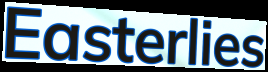
Easterlies